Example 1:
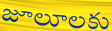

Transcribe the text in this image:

జూలూలకు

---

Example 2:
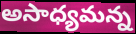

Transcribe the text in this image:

అసాధ్యమన్న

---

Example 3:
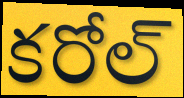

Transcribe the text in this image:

కరోల్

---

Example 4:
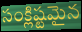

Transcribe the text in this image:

సంక్లిష్టమైన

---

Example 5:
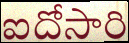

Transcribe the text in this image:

ఐదోసారి